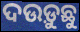
ଦଉଡ଼ୁଛୁ